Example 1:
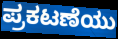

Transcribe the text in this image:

ಪ್ರಕಟಣೆಯು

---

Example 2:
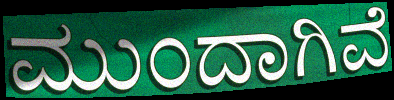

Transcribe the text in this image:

ಮುಂದಾಗಿವೆ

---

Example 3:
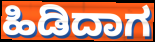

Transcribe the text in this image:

ಹಿಡಿದಾಗ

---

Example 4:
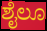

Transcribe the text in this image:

ಶೈಲೂ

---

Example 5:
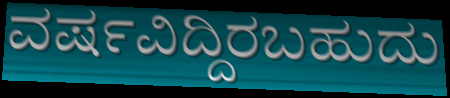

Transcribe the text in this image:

ವರ್ಷವಿದ್ದಿರಬಹುದು